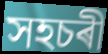
সহচৰী